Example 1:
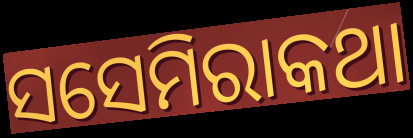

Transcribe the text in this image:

ସସେମିରାକଥା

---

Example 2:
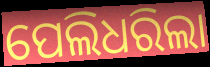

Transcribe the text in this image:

ପେଲିଧରିଲା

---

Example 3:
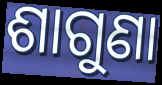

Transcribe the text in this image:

ଶାଗୁଣା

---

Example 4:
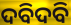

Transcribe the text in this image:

ଦବିଦବି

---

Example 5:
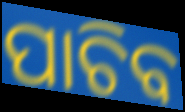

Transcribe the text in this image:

ପାଚିବ